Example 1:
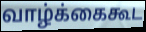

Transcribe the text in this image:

வாழ்க்கைகூட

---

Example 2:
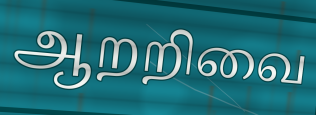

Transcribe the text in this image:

ஆறறிவை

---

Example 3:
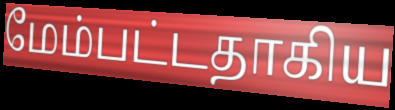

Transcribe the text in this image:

மேம்பட்டதாகிய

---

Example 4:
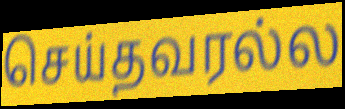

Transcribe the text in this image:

செய்தவரல்ல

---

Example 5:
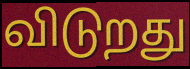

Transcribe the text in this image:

விடுறது